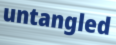
untangled